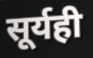
सूर्यही